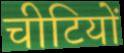
चीटियों